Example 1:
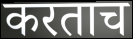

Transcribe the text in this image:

करताच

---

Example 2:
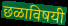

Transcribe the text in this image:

छळाविषयी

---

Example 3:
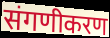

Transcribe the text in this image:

संगणीकरण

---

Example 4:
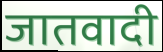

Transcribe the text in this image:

जातवादी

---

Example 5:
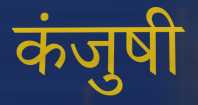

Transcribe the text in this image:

कंजुषी